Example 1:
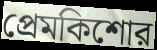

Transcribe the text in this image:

প্রেমকিশোর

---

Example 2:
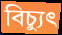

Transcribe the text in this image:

বিচ্যুৎ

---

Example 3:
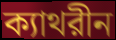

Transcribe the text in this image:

ক্যাথরীন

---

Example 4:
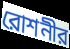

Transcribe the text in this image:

রোশনীর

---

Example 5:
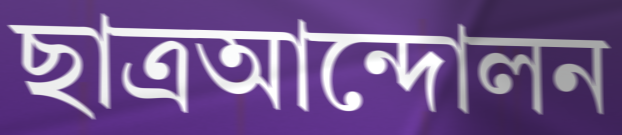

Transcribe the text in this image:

ছাত্রআন্দোলন